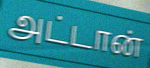
அட்டான்